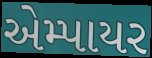
એમ્પાયર